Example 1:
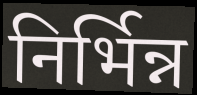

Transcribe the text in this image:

निर्भिन्न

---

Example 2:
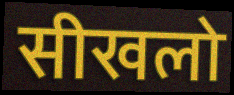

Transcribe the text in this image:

सीखलो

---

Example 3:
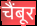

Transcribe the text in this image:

चैंबूर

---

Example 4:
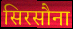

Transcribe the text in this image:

सिरसौना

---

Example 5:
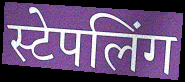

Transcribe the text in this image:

स्टेपलिंग